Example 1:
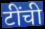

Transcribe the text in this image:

टींची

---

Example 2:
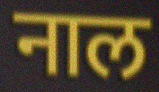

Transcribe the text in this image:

नाल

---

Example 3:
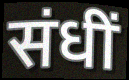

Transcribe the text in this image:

संधीं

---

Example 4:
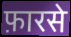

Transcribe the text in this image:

फ़ारसे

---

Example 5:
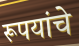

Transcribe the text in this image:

रूपयांचे